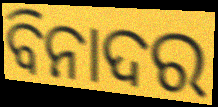
ବିନାଦର